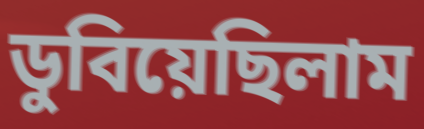
ডুবিয়েছিলাম